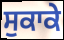
ਸੁਕਾਕੇ